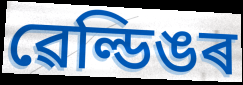
ৱেল্ডিঙৰ